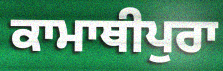
ਕਾਮਾਥੀਪੁਰਾ